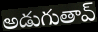
అడుగుతావ్